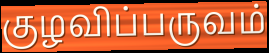
குழவிப்பருவம்